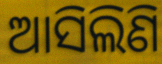
ଆସିଲିଣି